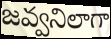
జవ్వనిలాగా